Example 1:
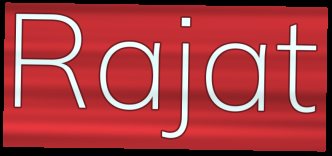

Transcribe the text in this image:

Rajat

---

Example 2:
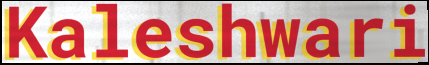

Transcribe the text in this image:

Kaleshwari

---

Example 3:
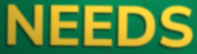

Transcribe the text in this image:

NEEDS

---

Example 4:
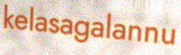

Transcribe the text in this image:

kelasagalannu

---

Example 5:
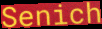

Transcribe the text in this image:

Senich